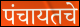
पंचायतचे